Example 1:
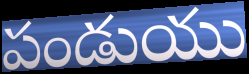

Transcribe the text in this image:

పండుయు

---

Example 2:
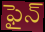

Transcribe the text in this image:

ఫైన్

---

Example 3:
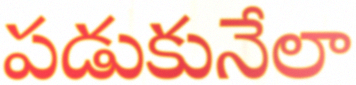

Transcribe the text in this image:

పడుకునేలా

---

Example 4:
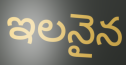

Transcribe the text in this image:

ఇలనైన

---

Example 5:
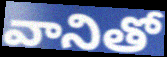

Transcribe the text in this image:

వానితో